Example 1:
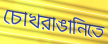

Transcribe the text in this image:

চোখরাঙানিতে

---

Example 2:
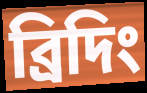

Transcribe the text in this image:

ব্রিদিং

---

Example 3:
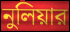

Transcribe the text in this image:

নুলিয়ার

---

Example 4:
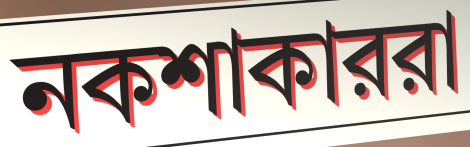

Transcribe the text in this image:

নকশাকাররা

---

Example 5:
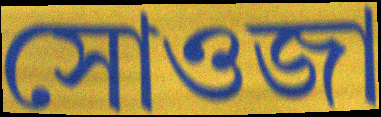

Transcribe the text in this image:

সোওজা